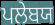
ਪਲੇਬਯ